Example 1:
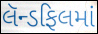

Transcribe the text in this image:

લૅન્ડફિલમાં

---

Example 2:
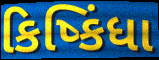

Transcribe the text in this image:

કિષ્કિંધા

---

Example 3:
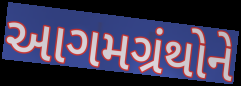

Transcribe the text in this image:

આગમગ્રંથોને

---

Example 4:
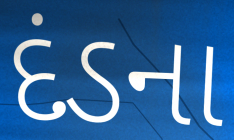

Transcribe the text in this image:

દંડના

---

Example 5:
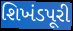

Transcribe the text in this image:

શિખંડપૂરી